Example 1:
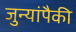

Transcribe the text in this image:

जुन्यांपैकी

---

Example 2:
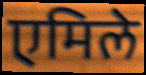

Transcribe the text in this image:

एमिले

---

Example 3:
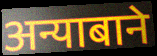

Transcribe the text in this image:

अन्याबाने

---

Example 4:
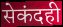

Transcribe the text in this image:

सेकंदही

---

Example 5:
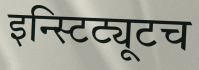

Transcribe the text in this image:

इन्स्टिट्यूटच